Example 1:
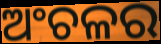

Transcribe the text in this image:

ଅଂଚଳର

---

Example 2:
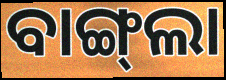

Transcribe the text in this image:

ବାଙ୍ଗ୍‍ଲା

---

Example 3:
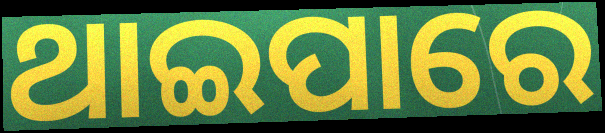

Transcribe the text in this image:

ଥାଇପାରେ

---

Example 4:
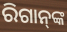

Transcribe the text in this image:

ରିଗାନ୍‌ଙ୍କ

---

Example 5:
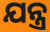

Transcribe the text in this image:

ଯନ୍ତ୍ର